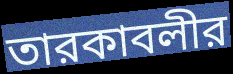
তারকাবলীর